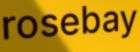
rosebay